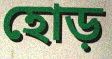
হোড়